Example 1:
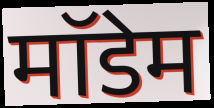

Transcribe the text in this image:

मॉडेम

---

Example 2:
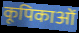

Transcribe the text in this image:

कूपिकाओं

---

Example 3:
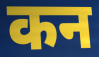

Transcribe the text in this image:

कन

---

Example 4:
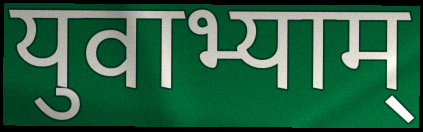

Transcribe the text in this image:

युवाभ्याम्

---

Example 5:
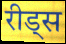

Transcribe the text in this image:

रीड्स